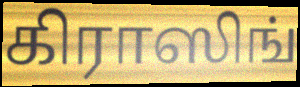
கிராஸிங்